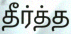
தீர்த்த